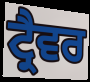
ਟ੍ਰੈਵਰ